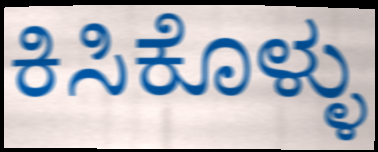
ಕಿಸಿಕೊಳ್ಳು